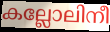
കല്ലോലിനീ